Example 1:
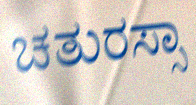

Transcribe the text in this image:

ಚತುರಸ್ಸಾ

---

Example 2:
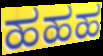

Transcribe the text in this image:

ಹಹಹ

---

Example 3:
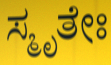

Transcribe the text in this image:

ಸ್ಮೃತೇಃ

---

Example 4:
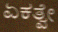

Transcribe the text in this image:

ಏಕತ್ವೇ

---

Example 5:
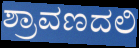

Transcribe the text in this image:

ಶ್ರಾವಣದಲಿ